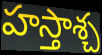
హస్తాశ్చ